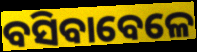
ବସିବାବେଳେ